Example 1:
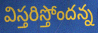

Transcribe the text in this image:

విస్తరిస్తోందన్న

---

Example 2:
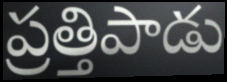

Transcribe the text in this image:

ప్రత్తిపాడు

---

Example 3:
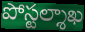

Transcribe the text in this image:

పోస్టల్శాఖ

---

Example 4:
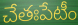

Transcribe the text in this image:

చేతఃపేటీం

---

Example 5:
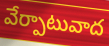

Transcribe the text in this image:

వేర్పాటువాద